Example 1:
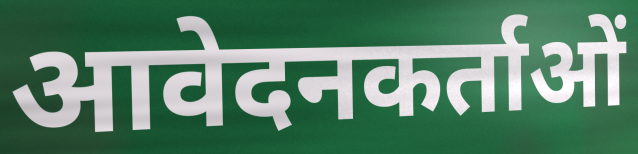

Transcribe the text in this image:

आवेदनकर्ताओं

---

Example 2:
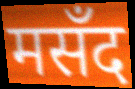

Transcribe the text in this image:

मसँद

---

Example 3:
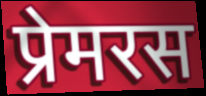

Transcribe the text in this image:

प्रेमरस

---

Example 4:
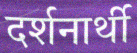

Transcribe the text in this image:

दर्शनार्थी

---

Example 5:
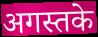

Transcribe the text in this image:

अगस्तके